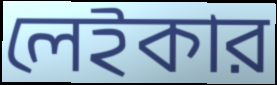
লেইকার